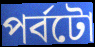
পৰ্বটো